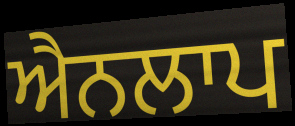
ਐਨਲਾਪ